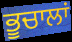
ਭੂਚਾਲਾਂ